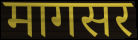
मागसर